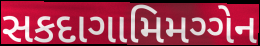
સકદાગામિમગ્ગેન